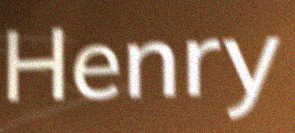
Henry